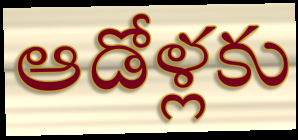
ఆడోళ్లకు